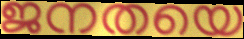
ജനതയെ